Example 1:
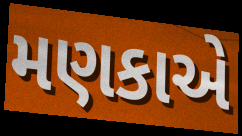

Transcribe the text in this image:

મણકાએ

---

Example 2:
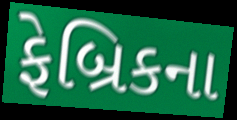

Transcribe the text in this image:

ફેબ્રિકના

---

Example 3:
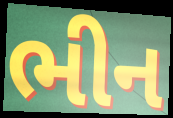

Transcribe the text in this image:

ભીન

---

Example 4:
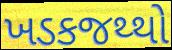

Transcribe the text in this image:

ખડકજથ્થો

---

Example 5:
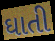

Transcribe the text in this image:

ઘાતી